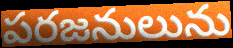
పరజనులును